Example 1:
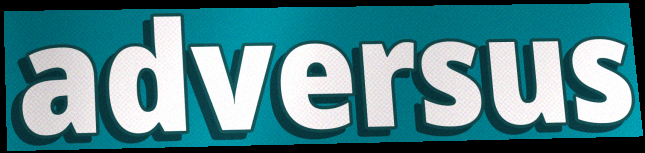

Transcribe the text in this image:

adversus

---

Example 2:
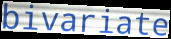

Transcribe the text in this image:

bivariate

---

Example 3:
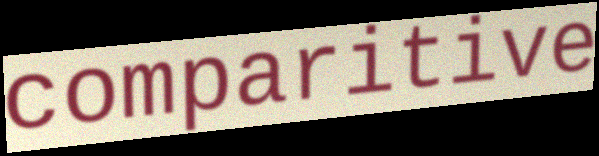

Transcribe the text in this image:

comparitive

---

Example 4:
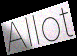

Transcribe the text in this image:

Allot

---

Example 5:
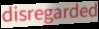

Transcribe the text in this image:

disregarded